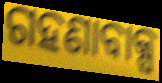
ଗହଣାବାକ୍ସ